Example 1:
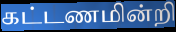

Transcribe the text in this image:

கட்டணமின்றி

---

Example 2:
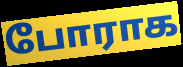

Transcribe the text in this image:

போராக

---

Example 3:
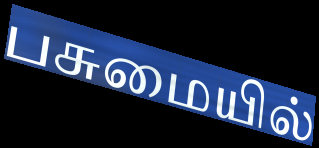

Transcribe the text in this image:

பசுமையில்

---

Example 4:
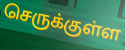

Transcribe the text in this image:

செருக்குள்ள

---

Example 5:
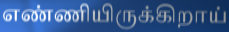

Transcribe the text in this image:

எண்ணியிருக்கிறாய்